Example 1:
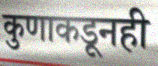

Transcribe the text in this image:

कुणाकडूनही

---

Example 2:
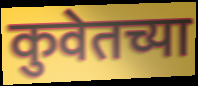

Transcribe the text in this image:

कुवेतच्या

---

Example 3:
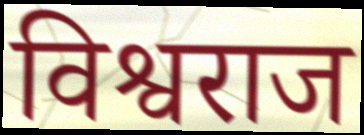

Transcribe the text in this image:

विश्वराज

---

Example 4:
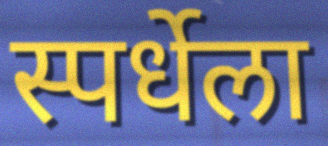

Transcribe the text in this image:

स्पर्धेला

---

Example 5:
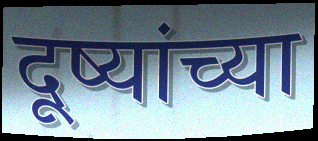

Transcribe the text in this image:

दूष्यांच्या